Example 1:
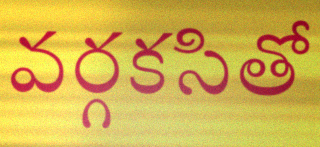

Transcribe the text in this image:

వర్గకసితో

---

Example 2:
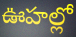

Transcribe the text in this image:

ఊహల్లో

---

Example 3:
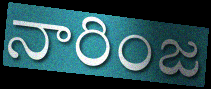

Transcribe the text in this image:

నారింజ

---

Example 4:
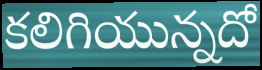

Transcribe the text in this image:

కలిగియున్నదో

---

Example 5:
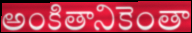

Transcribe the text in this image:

అంకితానికెంతా